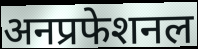
अनप्रफेशनल